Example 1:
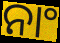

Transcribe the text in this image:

ନାଂ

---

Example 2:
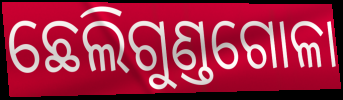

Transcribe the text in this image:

ଛେଲିଗୁଣ୍ଡଗୋଳା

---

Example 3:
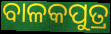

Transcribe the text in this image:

ବାଳକପୁତ୍ର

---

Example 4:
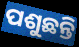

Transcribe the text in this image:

ପଶୁଛନ୍ତି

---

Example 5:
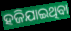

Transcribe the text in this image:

ହଜିଯାଇଥିବା